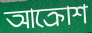
আক্রোশ